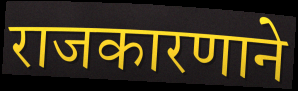
राजकारणाने